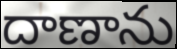
దాణాను